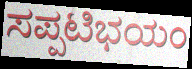
ಸಪ್ಪಟಿಭಯಂ